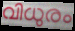
വിധുരം